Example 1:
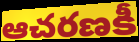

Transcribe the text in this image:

ఆచరణకీ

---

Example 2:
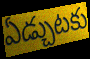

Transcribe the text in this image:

ఏడ్చుటకు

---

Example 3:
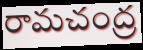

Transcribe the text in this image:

రామచంద్ర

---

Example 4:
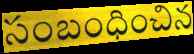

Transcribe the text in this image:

సంబంధించిన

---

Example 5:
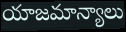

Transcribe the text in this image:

యాజమాన్యాలు